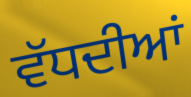
ਵੱਧਦੀਆਂ